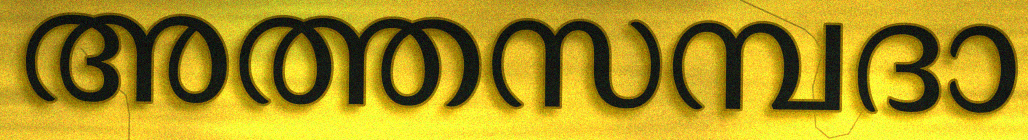
അത്തസമ്പദാ